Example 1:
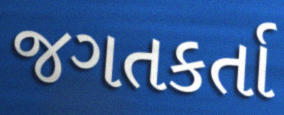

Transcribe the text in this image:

જગતકર્તા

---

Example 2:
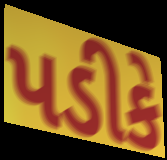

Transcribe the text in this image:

પડીકે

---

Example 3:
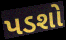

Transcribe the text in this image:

પડશો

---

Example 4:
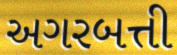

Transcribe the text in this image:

અગરબત્તી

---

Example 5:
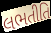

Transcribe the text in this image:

લભતીતિ